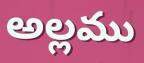
అల్లము